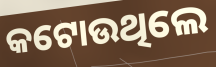
କଟୋଉଥିଲେ